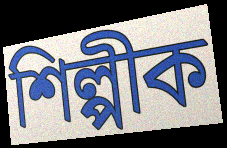
শিল্পীক